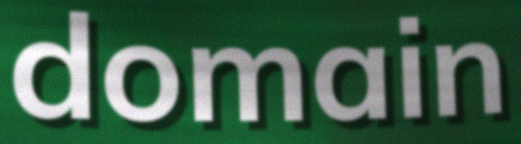
domain